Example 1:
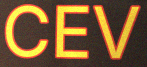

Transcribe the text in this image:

CEV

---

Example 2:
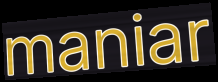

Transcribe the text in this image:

maniar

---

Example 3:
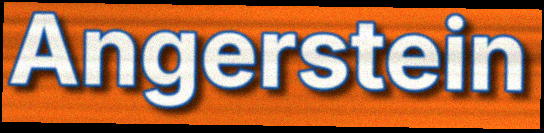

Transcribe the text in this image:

Angerstein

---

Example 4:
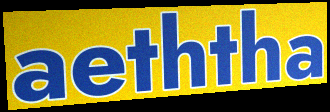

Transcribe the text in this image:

aeththa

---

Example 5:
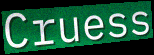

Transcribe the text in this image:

Cruess